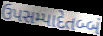
ઉપસમ્પાદેતબ્બં